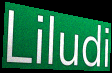
Liludi